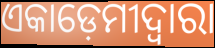
ଏକାଡ଼େମୀଦ୍ୱାରା